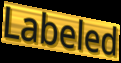
Labeled